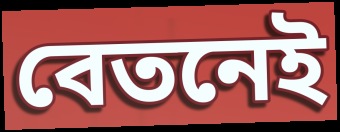
বেতনেই